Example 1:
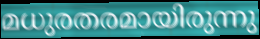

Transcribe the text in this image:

മധുരതരമായിരുന്നു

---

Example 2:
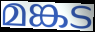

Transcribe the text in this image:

മങ്കട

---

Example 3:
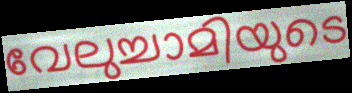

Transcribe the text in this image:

വേലുച്ചാമിയുടെ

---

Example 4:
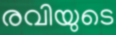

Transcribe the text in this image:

രവിയുടെ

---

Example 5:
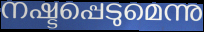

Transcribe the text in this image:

നഷ്ടപ്പെടുമെന്നു